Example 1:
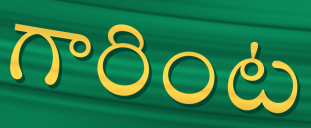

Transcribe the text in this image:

గారింట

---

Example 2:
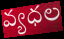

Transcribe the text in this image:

వ్యధల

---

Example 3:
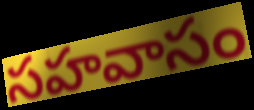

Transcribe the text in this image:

సహవాసం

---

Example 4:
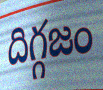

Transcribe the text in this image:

దిగ్గజం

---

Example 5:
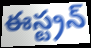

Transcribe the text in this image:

ఈస్ట్రన్